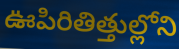
ఊపిరితిత్తుల్లోని